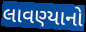
લાવણ્યાનો